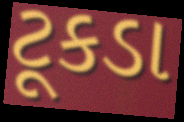
ટૂકડા